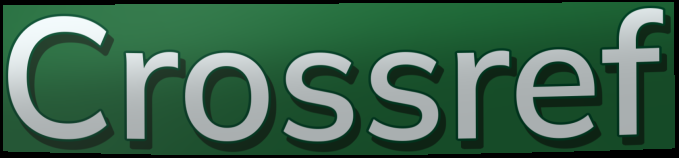
Crossref